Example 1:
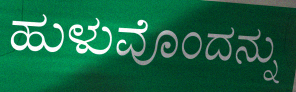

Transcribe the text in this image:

ಹುಳುವೊಂದನ್ನು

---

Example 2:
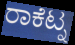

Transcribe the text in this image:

ರಾಕೆಟ್ನ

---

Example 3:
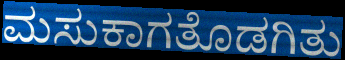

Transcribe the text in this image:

ಮಸುಕಾಗತೊಡಗಿತು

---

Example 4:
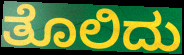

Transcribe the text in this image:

ತೊಲಿದು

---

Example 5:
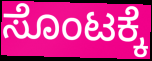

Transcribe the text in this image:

ಸೊಂಟಕ್ಕೆ